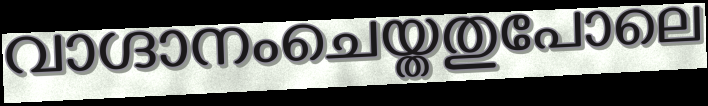
വാഗ്ദാനംചെയ്തതുപോലെ